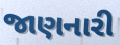
જાણનારી